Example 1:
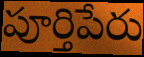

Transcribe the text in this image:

పూర్తిపేరు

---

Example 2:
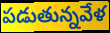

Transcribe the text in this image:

పడుతున్నవేళ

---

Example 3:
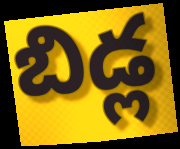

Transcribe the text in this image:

బిడ్ల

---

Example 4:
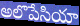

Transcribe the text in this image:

అలొపేసియా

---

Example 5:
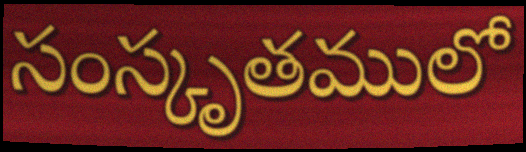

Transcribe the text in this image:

సంస్కృతములో